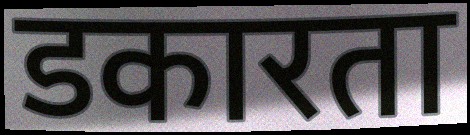
डकारता